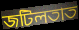
জটিলতাত